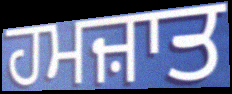
ਹਮਜ਼ਾਤ